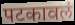
पटकावलं